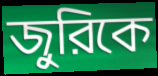
জুরিকে